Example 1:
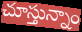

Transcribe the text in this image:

చూస్తున్నాం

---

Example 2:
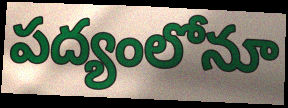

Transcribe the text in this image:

పద్యంలోనూ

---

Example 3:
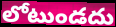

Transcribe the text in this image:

లోటుండదు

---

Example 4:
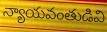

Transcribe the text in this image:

న్యాయవంతుడివి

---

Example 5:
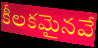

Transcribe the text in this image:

కీలకమైనవే